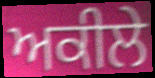
ਅਕੀਲੇ